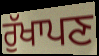
ਰੁੱਖਾਪਣ